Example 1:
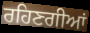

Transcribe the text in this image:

ਰਹਿਣਗੀਆਂ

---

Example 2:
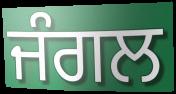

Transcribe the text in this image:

ਜੰਗਲ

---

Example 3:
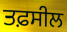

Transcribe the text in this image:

ਤਫ਼ਸੀਲ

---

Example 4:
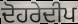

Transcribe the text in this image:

ਦੋਹਰੇਦੀਪ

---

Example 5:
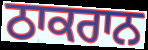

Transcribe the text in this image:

ਠਾਕਰਾਨ